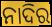
ନାଦିର